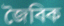
জৈবিক